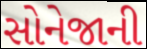
સોનેજાની